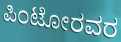
ಪಿಂಟೋರವರ